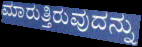
ಮಾರುತ್ತಿರುವುದನ್ನು